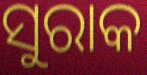
ସୁରାକ